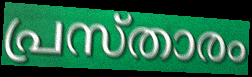
പ്രസ്താരം